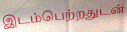
இடம்பெற்றதுடன்